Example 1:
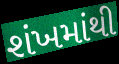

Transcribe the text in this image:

શંખમાંથી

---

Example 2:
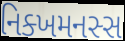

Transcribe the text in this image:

નિક્ખમનસ્સ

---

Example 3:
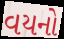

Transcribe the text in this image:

વયનો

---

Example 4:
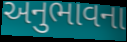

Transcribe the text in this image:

અનુભાવના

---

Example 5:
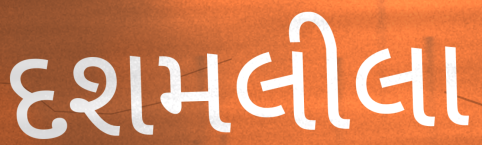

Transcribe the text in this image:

દશમલીલા